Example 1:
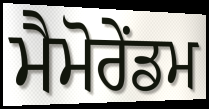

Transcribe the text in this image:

ਮੈਮੋਰੇਂਡਮ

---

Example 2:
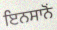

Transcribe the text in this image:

ਇਨਸਾਨੋਂ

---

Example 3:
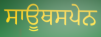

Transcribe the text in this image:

ਸਾਊਥਸਪੇਨ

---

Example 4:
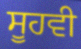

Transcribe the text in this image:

ਸੂਹਵੀ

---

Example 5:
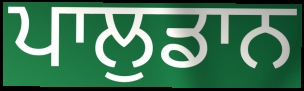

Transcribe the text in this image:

ਪਾਲੁਡਾਨ